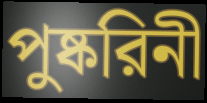
পুষ্করিনী